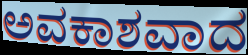
ಅವಕಾಶವಾದ